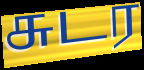
சுடர